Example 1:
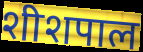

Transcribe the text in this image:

शीशपाल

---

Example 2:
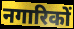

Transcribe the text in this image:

नगारिकों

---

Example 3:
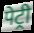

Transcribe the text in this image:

पेट्री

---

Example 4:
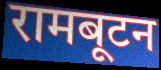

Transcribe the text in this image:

रामबूटन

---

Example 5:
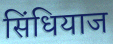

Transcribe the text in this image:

सिंधियाज